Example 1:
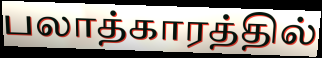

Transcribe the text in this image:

பலாத்காரத்தில்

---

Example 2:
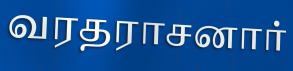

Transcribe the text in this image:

வரதராசனார்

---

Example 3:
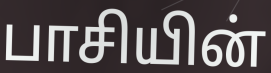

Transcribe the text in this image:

பாசியின்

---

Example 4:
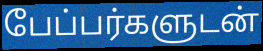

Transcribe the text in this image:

பேப்பர்களுடன்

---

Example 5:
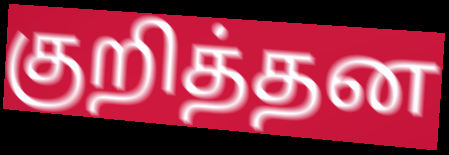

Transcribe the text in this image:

குறித்தன